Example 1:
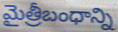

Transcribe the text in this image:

మైత్రీబంధాన్ని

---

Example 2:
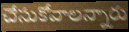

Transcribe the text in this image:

చేసుకోవాలన్నారు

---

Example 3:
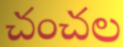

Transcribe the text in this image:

చంచల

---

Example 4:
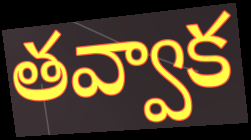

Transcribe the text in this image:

తవ్వాక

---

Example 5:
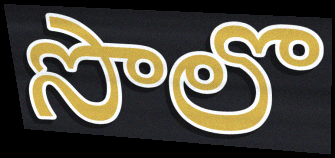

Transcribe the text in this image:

సొలొ